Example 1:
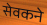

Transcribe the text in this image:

सेवकने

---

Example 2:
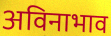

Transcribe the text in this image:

अविनाभाव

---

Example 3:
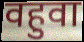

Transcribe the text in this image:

वहुवा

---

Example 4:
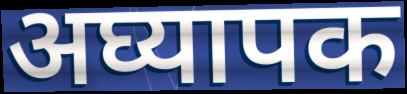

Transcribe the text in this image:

अघ्यापक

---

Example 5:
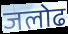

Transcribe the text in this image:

जलोढ